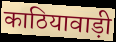
काठियावाड़ी